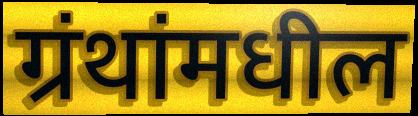
ग्रंथांमधील